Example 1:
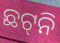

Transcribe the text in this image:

ଛଟ୍‌ନି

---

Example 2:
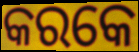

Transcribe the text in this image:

କରକେ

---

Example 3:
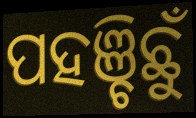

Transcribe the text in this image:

ପହଞ୍ଚିଛୁଁ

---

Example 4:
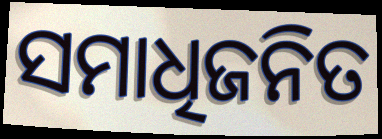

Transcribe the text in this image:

ସମାଧିଜନିତ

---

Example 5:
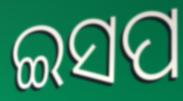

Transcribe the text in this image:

ଇସପ